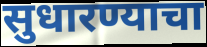
सुधारण्याचा